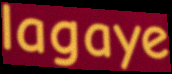
lagaye